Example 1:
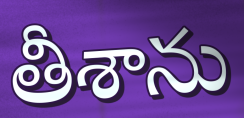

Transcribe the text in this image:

తీశాను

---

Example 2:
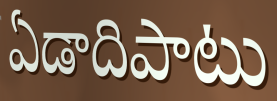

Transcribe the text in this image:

ఏడాదిపాటు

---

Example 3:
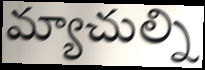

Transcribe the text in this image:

మ్యాచుల్ని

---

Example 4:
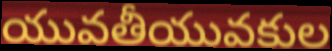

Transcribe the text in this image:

యువతీయువకుల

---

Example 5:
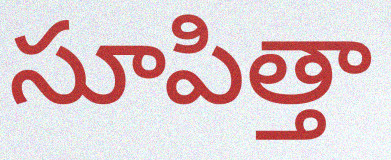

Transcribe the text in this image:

సూపిత్తా